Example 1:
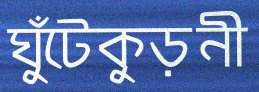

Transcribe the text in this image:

ঘুঁটেকুড়নী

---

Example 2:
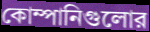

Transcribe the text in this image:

কোম্পানিগুলোর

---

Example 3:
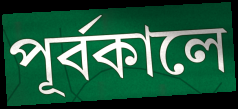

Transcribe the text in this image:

পূর্বকালে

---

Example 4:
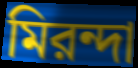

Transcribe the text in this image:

মিরন্দা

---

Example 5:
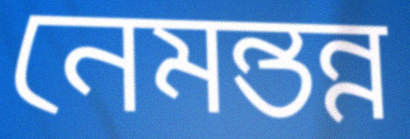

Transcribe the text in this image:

নেমন্তন্ন